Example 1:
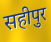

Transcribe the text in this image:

सहीपुर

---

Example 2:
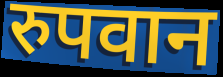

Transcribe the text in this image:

रुपवान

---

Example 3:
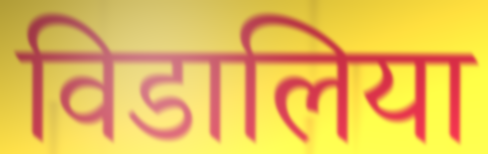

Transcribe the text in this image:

विडालिया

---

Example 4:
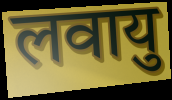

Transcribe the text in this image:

लवायु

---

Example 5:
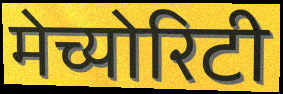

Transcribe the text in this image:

मेच्योरिटी